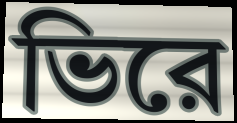
ভিরে